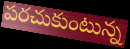
పరచుకుంటున్న